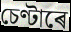
চেণ্টাৰে